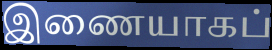
இணையாகப்